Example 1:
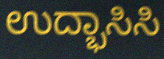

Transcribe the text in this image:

ಉದ್ಭಾಸಿಸಿ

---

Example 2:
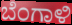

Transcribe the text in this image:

ಬೆಂಗಾಳಿ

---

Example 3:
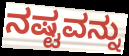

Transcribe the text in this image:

ನಷ್ಟವನ್ನು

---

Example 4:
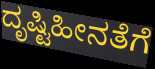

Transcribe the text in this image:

ದೃಷ್ಟಿಹೀನತೆಗೆ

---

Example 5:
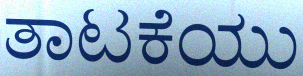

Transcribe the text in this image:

ತಾಟಕೆಯು